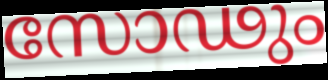
സോഢും